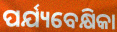
ପର୍ଯ୍ୟବେକ୍ଷିକା